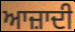
ਆਜ਼ਾਦੀ